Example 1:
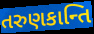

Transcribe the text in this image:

તરુણકાન્તિ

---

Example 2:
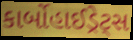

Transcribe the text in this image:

કાર્બોહાઈડ્રેટ્સ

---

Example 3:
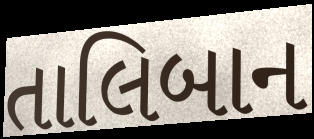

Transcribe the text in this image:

તાલિબાન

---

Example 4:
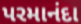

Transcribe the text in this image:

પરમાનંદા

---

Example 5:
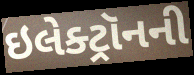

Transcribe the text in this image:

ઇલેક્ટ્રૉનની